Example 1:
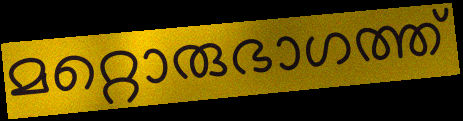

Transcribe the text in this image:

മറ്റൊരുഭാഗത്ത്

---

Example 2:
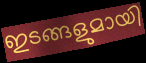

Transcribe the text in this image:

ഇടങ്ങളുമായി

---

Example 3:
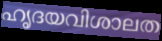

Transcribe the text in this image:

ഹൃദയവിശാലത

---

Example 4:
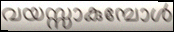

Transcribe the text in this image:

വയസ്സാകുമ്പോൾ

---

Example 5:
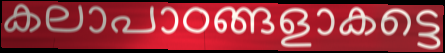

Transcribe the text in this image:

കലാപാഠങ്ങളാകട്ടെ